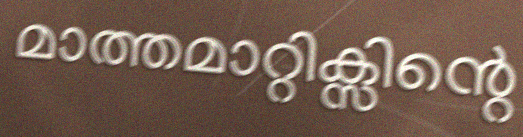
മാത്തമാറ്റിക്സിന്റെ